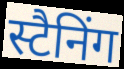
स्टैनिंग